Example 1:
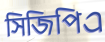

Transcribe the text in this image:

সিজিপিএ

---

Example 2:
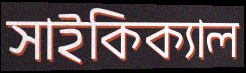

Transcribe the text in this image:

সাইকিক্যাল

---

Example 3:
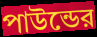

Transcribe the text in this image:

পাউন্ডের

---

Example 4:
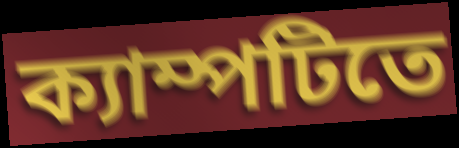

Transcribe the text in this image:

ক্যাম্পটিতে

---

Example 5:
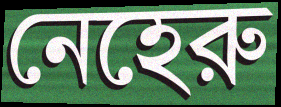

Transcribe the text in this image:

নেহেরু